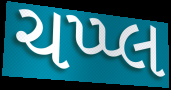
ચપ્પ્લ